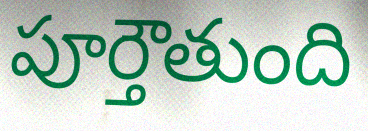
పూర్తౌతుంది